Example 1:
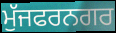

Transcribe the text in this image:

ਮੁੱਜਫਰਨਗਰ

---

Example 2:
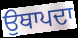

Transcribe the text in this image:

ਉਥਾਪਦਾ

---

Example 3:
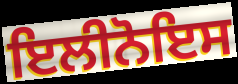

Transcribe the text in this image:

ਇਲੀਨੋਇਸ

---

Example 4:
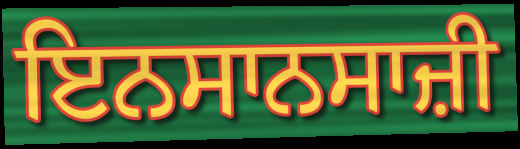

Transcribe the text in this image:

ਇਨਸਾਨਸਾਜ਼ੀ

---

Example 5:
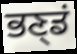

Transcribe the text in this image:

ਭਣ੍ਡਂ